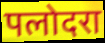
पलोदरा